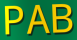
PAB